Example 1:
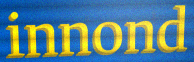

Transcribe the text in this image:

innond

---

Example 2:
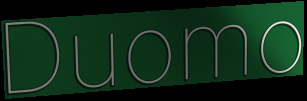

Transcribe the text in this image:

Duomo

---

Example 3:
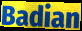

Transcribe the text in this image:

Badian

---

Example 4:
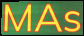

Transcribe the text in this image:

MAs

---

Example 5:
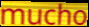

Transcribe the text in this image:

mucho